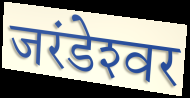
जरंडेश्वर